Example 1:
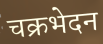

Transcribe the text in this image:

चक्रभेदन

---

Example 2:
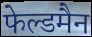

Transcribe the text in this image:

फेल्डमैन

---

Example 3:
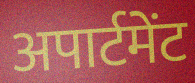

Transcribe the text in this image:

अपार्टमेंट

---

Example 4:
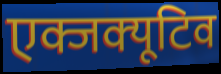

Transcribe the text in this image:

एक्जक्यूटिव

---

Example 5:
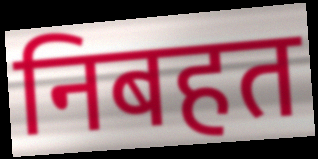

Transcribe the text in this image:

निबहत